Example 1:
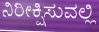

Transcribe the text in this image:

ನಿರೀಕ್ಷಿಸುವಲ್ಲಿ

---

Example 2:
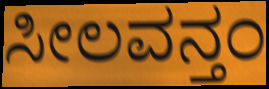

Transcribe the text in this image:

ಸೀಲವನ್ತಂ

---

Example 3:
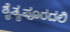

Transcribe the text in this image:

ಶೈತ್ಯಪೂರದಲಿ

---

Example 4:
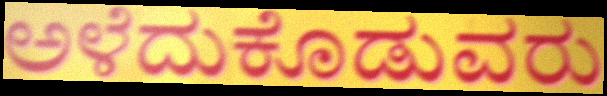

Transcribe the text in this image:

ಅಳೆದುಕೊಡುವರು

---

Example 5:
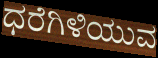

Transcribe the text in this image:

ಧರೆಗಿಳಿಯುವ